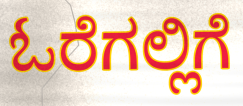
ಓರೆಗಲ್ಲಿಗೆ